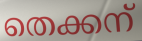
തെക്കന്